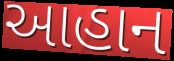
આહાન